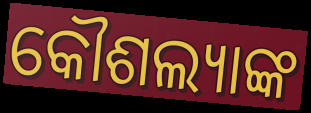
କୌଶଲ୍ୟାଙ୍କ